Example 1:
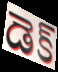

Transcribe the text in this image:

డెక్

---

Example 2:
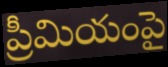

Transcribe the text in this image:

ప్రీమియంపై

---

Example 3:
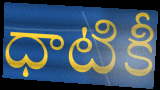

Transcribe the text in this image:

ధాటికీ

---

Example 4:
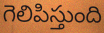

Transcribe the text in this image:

గెలిపిస్తుంది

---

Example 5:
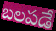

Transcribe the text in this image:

బలపడే